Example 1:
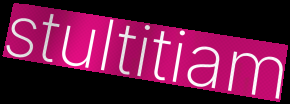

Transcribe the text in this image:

stultitiam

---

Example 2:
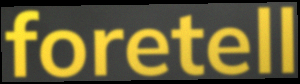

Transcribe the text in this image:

foretell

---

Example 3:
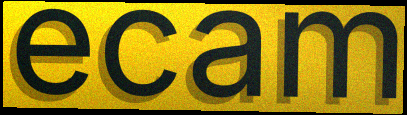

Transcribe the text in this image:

ecam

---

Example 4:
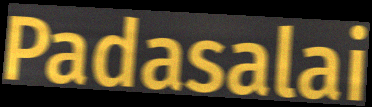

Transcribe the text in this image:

Padasalai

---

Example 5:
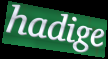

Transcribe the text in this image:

hadige